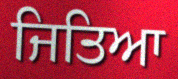
ਜਿਤਿਆ